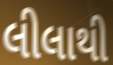
લીલાથી